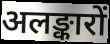
अलङ्कारों